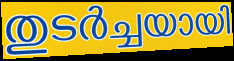
തുടർച്ചയായി